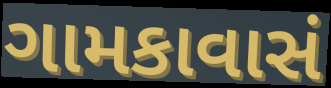
ગામકાવાસં